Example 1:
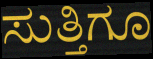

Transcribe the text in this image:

ಸುತ್ತಿಗೂ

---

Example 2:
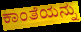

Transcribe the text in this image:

ಕಾಂತೆಯನ್ನು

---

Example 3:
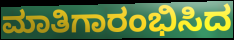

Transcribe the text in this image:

ಮಾತಿಗಾರಂಭಿಸಿದ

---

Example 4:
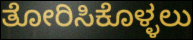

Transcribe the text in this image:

ತೋರಿಸಿಕೊಳ್ಳಲು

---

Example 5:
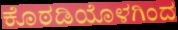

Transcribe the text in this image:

ಕೊಠಡಿಯೊಳಗಿಂದ